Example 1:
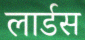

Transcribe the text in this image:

लार्डस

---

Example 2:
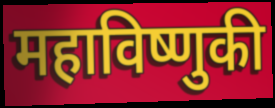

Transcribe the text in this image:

महाविष्णुकी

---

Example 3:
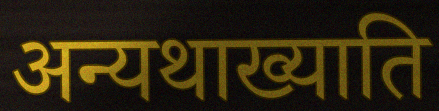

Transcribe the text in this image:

अन्यथाख्याति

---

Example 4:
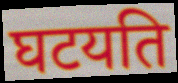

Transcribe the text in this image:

घटयति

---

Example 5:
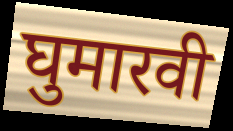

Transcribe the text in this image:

घुमारवी